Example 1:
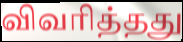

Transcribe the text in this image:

விவரித்தது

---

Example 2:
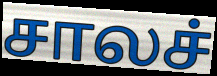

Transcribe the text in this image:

சாலச்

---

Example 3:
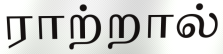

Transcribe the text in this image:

ராற்றால்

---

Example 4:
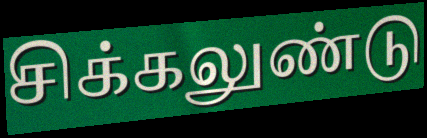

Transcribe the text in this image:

சிக்கலுண்டு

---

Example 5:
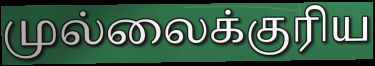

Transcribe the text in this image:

முல்லைக்குரிய